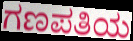
ಗಣಪತಿಯ